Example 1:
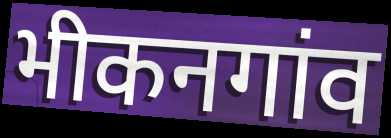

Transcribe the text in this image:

भीकनगांव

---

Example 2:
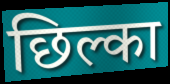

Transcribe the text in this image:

छिल्का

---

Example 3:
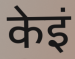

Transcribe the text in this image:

केइं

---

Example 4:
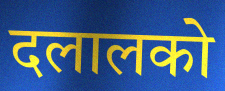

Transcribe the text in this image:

दलालको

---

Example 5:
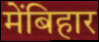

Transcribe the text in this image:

मेंबिहार